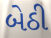
બેઠી